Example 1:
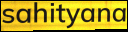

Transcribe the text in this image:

sahityana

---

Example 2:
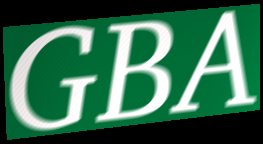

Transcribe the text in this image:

GBA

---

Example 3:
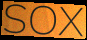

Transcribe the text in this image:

SOX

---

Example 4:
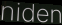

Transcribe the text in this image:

niden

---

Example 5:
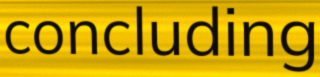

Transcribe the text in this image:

concluding